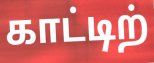
காட்டிற்